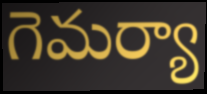
గెమర్యా